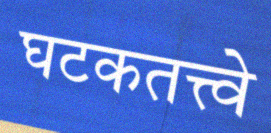
घटकतत्त्वे